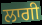
ਲਾਗੀ